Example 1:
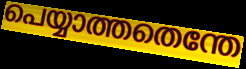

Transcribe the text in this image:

പെയ്യാത്തതെന്തേ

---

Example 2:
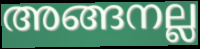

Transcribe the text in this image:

അങ്ങനല്ല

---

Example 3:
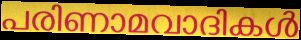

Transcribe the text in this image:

പരിണാമവാദികൾ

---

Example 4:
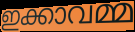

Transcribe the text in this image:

ഇക്കാവമ്മ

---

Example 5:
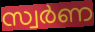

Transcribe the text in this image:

സ്വർണ